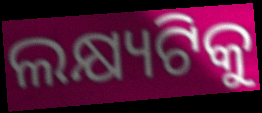
ଲକ୍ଷ୍ୟଟିକୁ